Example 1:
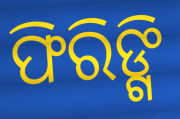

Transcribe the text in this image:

ଫିରିଙ୍ଗି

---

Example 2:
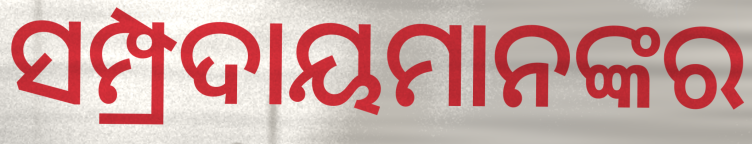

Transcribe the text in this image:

ସମ୍ପ୍ରଦାୟମାନଙ୍କର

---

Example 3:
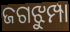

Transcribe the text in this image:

ଜଗଝୁମ୍ପା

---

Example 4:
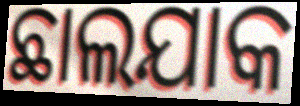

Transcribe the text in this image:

ଛାଲଯାକ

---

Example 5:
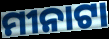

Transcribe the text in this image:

ମୀନାଟା